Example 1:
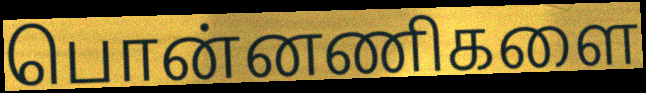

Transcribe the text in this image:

பொன்னணிகளை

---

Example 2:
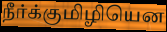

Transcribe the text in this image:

நீர்க்குமிழியென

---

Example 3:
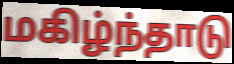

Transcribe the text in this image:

மகிழ்ந்தாடு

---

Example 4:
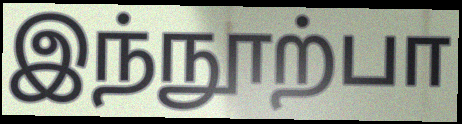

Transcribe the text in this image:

இந்நூற்பா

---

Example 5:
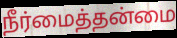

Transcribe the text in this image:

நீர்மைத்தன்மை